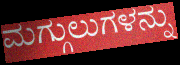
ಮಗ್ಗುಲುಗಳನ್ನು